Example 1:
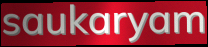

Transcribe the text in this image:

saukaryam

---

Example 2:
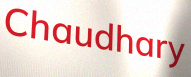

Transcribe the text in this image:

Chaudhary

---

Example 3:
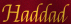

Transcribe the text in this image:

Haddad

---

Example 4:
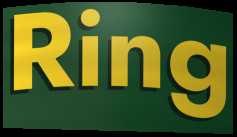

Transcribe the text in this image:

Ring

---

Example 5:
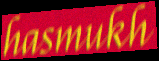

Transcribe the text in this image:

hasmukh